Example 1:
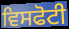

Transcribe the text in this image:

ਵਿਸਫੋਟੀ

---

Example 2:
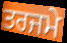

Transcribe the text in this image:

ਤਰਜਮੇ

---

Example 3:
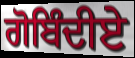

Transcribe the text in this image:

ਗੋਬਿੰਦੀਏ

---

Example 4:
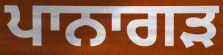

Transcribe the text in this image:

ਪਾਨਾਗੜ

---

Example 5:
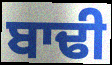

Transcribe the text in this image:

ਬਾਢੀ